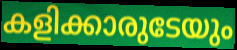
കളിക്കാരുടേയും